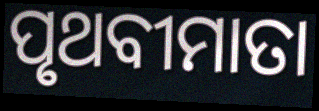
ପୃଥବୀମାତା